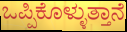
ಒಪ್ಪಿಕೊಳ್ಳುತ್ತಾನೆ